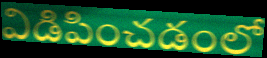
విడిపించడంలో